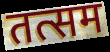
तत्सम